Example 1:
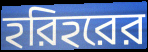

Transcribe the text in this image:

হরিহরের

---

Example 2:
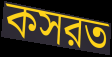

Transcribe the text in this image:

কসরত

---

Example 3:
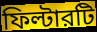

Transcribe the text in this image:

ফিল্টারটি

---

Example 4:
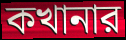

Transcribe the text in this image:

কখানার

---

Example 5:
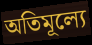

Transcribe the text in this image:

অতিমূল্যে